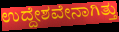
ಉದ್ದೇಶವೇನಾಗಿತ್ತು